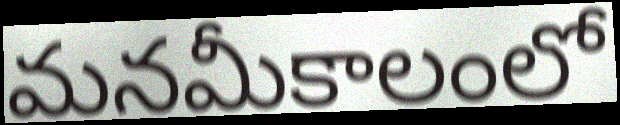
మనమీకాలంలో